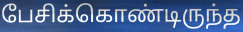
பேசிக்கொண்டிருந்த